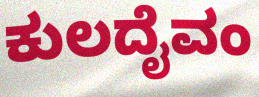
ಕುಲದೈವಂ